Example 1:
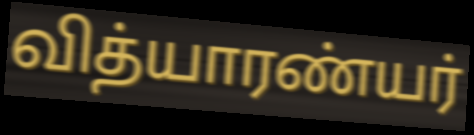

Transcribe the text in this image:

வித்யாரண்யர்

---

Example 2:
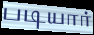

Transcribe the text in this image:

படியார்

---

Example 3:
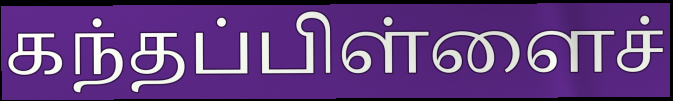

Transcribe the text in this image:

கந்தப்பிள்ளைச்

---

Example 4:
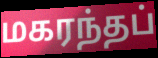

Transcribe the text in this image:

மகரந்தப்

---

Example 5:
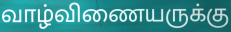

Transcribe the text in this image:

வாழ்விணையருக்கு